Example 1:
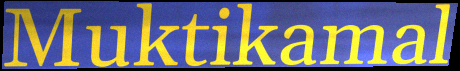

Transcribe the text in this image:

Muktikamal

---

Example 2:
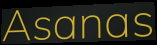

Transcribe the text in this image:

Asanas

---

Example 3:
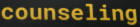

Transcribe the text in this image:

counseling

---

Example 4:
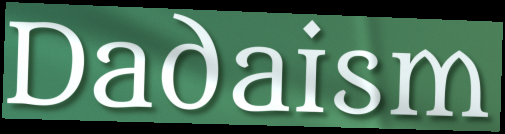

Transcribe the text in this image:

Dadaism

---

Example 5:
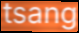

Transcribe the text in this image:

tsang